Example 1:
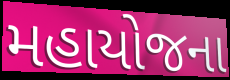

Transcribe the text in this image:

મહાયોજના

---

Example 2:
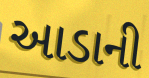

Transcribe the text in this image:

આડાની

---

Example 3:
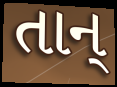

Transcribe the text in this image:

તાન્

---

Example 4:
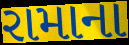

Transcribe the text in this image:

રામાના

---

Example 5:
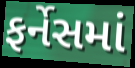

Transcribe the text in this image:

ફર્નેસમાં